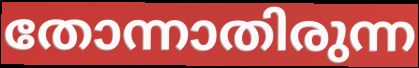
തോന്നാതിരുന്ന